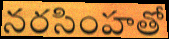
నరసింహతో